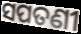
ସପତଣୀ